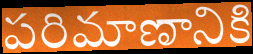
పరిమాణానికి